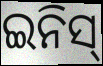
ଇନିସ୍